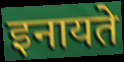
इनायते